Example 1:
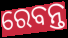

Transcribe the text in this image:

ରେବନ୍ତ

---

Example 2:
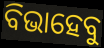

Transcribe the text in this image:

ବିଭାହେବୁ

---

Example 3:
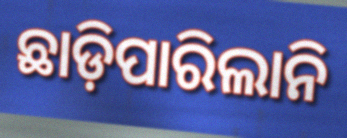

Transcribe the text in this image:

ଛାଡ଼ିପାରିଲାନି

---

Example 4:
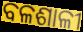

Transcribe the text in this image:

ବଳଶାଳୀ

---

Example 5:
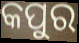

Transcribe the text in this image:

କପୁର